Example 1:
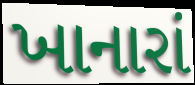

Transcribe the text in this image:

ખાનારાં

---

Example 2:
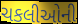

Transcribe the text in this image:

ચકલીઓની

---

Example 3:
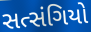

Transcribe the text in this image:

સત્સંગિયો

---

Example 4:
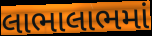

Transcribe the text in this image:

લાભાલાભમાં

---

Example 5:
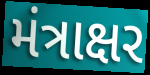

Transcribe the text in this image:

મંત્રાક્ષર